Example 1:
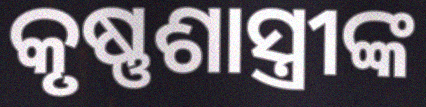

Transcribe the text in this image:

କୃଷ୍ଣଶାସ୍ତ୍ରୀଙ୍କ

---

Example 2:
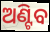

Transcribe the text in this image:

ଅଣ୍ଟିବ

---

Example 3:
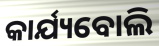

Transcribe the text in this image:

କାର୍ଯ୍ୟବୋଲି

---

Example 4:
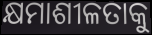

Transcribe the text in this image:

କ୍ଷମାଶୀଳତାକୁ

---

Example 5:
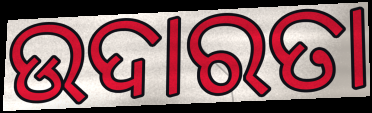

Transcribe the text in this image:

ଉଦାରତା